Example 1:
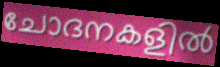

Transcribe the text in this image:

ചോദനകളിൽ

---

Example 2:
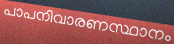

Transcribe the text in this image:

പാപനിവാരണസ്ഥാനം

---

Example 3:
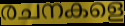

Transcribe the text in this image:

രചനകളെ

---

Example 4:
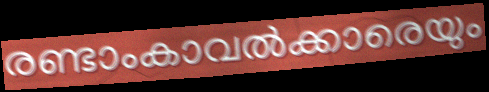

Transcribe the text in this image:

രണ്ടാംകാവൽക്കാരെയും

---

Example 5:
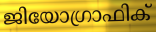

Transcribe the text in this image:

ജിയോഗ്രാഫിക്